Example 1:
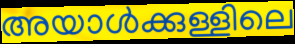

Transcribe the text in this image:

അയാൾക്കുള്ളിലെ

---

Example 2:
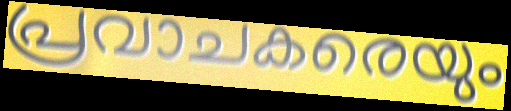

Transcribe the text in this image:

പ്രവാചകരെയും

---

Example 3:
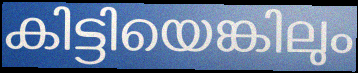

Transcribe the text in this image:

കിട്ടിയെങ്കിലും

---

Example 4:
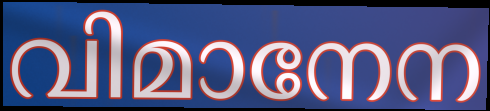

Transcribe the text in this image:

വിമാനേന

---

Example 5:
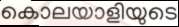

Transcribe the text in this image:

കൊലയാളിയുടെ